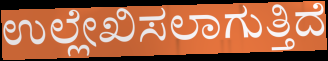
ಉಲ್ಲೇಖಿಸಲಾಗುತ್ತಿದೆ